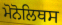
ਮੋਨੋਲਿਥਸ